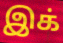
இக்